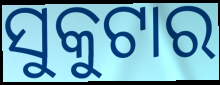
ସୁକୁଟାର